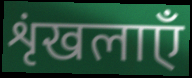
शृंखलाएँ